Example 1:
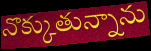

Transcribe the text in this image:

నొక్కుతున్నాను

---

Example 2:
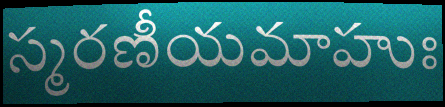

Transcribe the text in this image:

స్మరణీయమాహుః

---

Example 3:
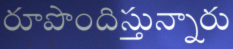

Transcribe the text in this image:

రూపొందిస్తున్నారు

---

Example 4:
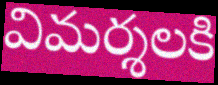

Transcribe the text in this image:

విమర్శలకి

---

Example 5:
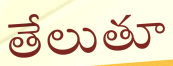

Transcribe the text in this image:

తేలుతూ